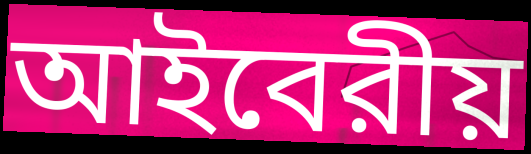
আইবেরীয়